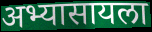
अभ्यासायला